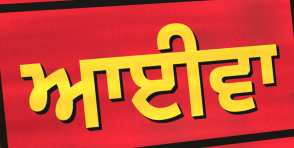
ਆਈਵਾ